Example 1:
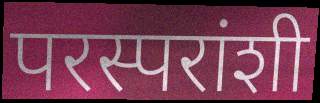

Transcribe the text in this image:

परस्परांशी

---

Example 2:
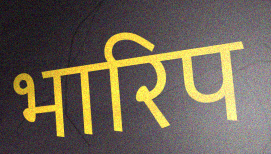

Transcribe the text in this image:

भारिप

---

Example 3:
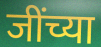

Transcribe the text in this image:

जींच्या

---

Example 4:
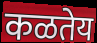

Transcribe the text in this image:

कळतेय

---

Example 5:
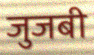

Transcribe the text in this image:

जुजबी